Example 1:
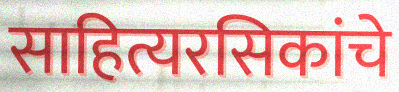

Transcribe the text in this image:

साहित्यरसिकांचे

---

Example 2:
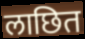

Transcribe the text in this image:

लाछित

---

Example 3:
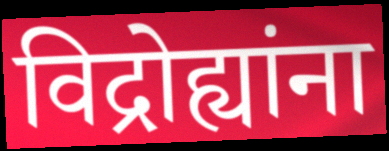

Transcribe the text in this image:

विद्रोह्यांना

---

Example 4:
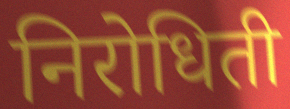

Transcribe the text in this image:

निरोधिती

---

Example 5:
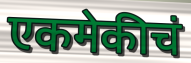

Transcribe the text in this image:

एकमेकीचं